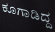
ಕೂಗಾಡಿದ್ದ